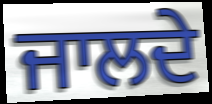
ਜਾਲਦੇ